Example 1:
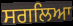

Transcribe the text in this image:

ਸਗਲਿਆ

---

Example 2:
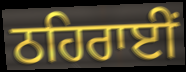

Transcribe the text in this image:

ਠਹਿਰਾਈਂ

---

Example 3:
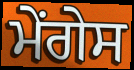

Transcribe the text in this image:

ਮੇਂਗੇਸ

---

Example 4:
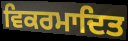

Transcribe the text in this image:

ਵਿਕਰਮਾਦਿਤ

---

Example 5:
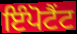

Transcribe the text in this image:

ਇੰਪੋਟੈਂਟ